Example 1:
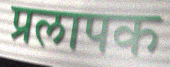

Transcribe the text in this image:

प्रलापक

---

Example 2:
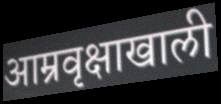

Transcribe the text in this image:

आम्रवृक्षाखाली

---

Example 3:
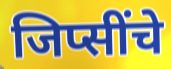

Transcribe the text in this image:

जिप्सींचे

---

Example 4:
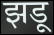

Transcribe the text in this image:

झडू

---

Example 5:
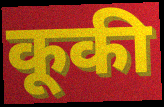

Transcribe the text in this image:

कूकी